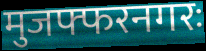
मुजफ्फरनगरः